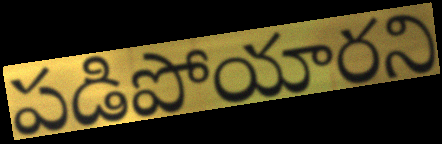
పడిపోయారని